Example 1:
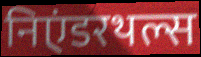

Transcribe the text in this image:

निएंडरथल्स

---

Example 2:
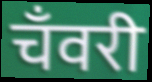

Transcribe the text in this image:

चँवरी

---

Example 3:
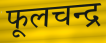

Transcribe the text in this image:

फूलचन्द्र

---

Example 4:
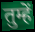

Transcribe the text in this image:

तुम्हें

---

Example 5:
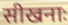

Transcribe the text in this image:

सीखनाः